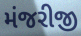
મંજરીજી